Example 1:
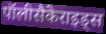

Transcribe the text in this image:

पॉलीसैकेराइड्स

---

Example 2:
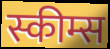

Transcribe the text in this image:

स्‍कीम्‍स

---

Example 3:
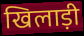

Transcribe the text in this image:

खिलाड़ी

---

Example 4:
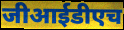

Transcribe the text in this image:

जीआईडीएच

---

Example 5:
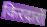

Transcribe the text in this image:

किरदारों